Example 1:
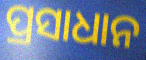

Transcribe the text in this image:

ପ୍ରସାଧାନ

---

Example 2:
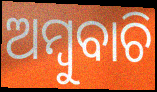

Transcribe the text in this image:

ଅମ୍ବୁବାଚି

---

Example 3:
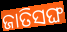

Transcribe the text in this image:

ଜାତିସଙ୍ଘ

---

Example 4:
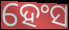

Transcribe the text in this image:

ହେଂସ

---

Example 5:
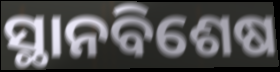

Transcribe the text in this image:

ସ୍ଥାନବିଶେଷ